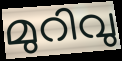
മുറിവു